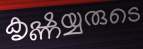
കൃഷ്ണയ്യരുടെ